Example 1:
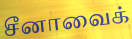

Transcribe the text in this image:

சீனாவைக்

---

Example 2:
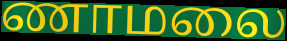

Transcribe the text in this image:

ணாமலை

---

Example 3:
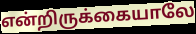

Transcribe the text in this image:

என்றிருக்கையாலே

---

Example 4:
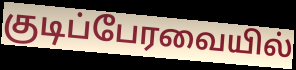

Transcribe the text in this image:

குடிப்பேரவையில்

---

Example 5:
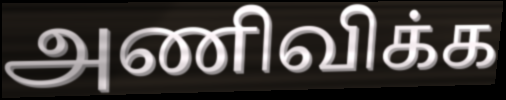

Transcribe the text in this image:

அணிவிக்க